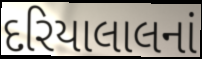
દરિયાલાલનાં